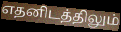
எதனிடத்திலும்